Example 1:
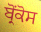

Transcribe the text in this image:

ਬ੍ਰੋਂਕੋਸ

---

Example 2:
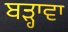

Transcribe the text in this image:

ਬੜ੍ਹਾਵਾ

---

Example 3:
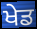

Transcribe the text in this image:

ਖੇਡ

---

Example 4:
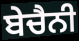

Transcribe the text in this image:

ਬੇਚੈਨੀ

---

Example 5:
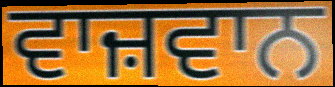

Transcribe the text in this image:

ਵਾਜ਼ਵਾਨ